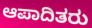
ಆಪಾದಿತರು